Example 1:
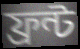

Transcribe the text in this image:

ফ্ৰন্ট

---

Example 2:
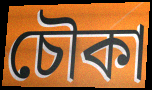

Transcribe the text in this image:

চৌকা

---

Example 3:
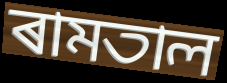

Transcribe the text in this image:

ৰামতাল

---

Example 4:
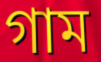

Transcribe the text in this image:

গাম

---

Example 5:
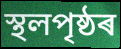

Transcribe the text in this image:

স্থলপৃষ্ঠৰ